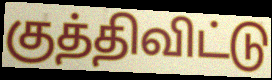
குத்திவிட்டு